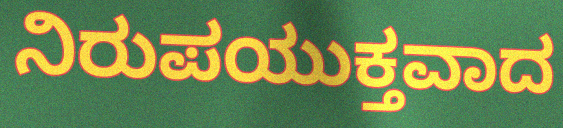
ನಿರುಪಯುಕ್ತವಾದ